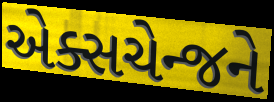
એક્સચેન્જને